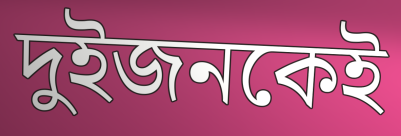
দুইজনকেই